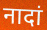
नादां